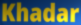
Khadar